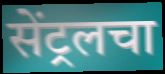
सेंट्रलचा